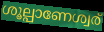
ശൂല്പാണേശ്വര്